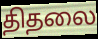
திதலை